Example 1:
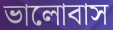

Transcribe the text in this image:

ভালোবাস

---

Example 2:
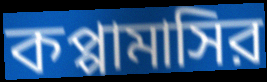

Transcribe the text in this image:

কপ্পামাসির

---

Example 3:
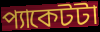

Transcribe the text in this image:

প্যাকেটটা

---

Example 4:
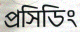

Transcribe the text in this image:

প্রসিডিং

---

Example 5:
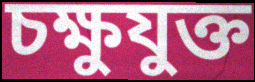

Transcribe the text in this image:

চক্ষুযুক্ত